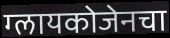
ग्लायकोजेनचा